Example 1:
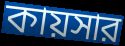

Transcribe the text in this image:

কায়সার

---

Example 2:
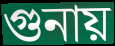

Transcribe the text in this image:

গুনায়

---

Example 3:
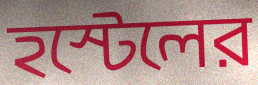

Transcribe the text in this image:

হস্টেলের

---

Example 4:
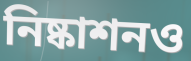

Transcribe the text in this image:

নিষ্কাশনও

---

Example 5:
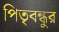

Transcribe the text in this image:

পিতৃবন্ধুর